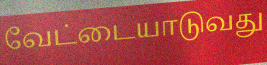
வேட்டையாடுவது